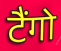
टैंगो